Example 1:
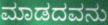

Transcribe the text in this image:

ಮಾಡದವನು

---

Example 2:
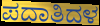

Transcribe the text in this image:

ಪದಾತಿದಳ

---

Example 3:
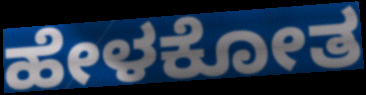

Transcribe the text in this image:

ಹೇಳಕೋತ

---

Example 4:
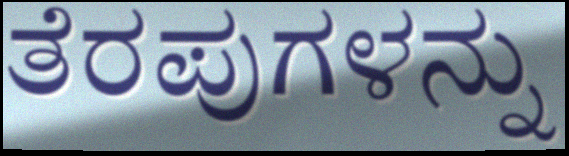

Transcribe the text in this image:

ತೆರಪುಗಳನ್ನು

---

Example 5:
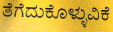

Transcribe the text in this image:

ತೆಗೆದುಕೊಳ್ಳುವಿಕೆ